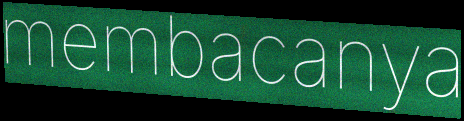
membacanya